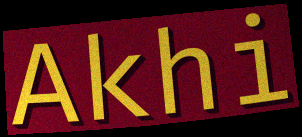
Akhi